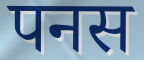
पनस